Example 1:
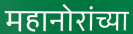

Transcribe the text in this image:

महानोरांच्या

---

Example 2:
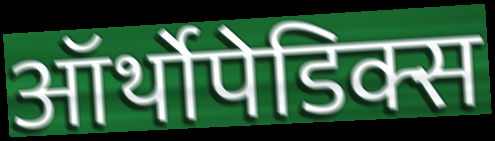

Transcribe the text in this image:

ऑर्थोपेडिक्स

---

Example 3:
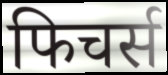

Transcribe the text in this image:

फिचर्स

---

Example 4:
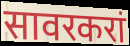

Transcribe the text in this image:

सावरकरां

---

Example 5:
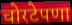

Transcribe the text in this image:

चोरटेपणा